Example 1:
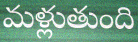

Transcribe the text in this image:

మళ్లుతుంది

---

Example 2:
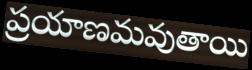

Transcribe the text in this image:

ప్రయాణమవుతాయి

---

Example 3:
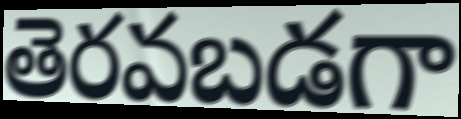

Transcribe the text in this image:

తెరవబడగా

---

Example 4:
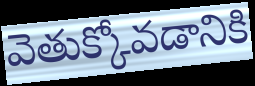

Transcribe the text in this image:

వెతుక్కోవడానికి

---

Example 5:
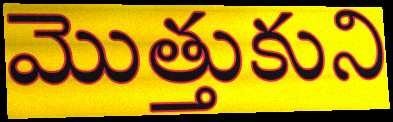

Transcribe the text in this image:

మొత్తుకుని